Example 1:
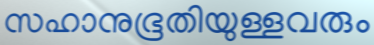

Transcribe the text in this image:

സഹാനുഭൂതിയുള്ളവരും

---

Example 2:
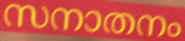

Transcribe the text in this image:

സനാതനം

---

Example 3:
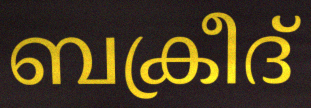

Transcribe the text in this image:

ബക്രീദ്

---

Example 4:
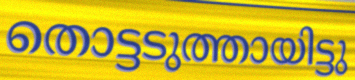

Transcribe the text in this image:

തൊട്ടടുത്തായിട്ടു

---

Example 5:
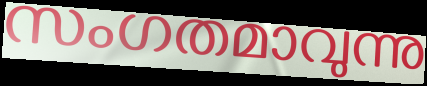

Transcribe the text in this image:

സംഗതമാവുന്നു